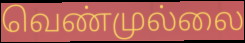
வெண்முல்லை